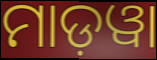
ମାଡ଼ୱା